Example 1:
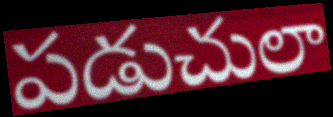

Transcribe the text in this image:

పడుచులా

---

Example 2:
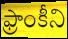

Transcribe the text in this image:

ఫ్రాంకీని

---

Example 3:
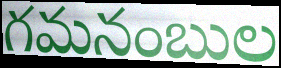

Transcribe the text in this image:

గమనంబుల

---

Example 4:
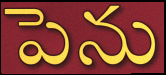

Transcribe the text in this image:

పెను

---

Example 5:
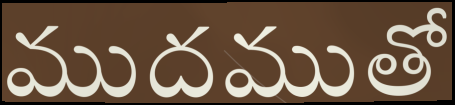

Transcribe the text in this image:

ముదముతో